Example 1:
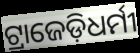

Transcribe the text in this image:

ଟ୍ରାଜେଡ଼ିଧର୍ମୀ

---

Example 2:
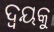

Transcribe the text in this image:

ଦ୍ୱୟକୁ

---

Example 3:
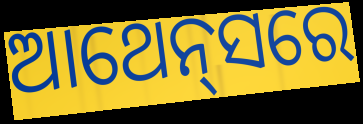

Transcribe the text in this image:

ଆଥେନ୍‍ସରେ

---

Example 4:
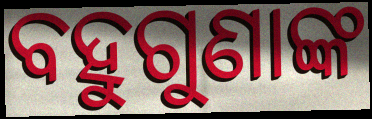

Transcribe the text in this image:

ବହୁଗୁଣାଙ୍କ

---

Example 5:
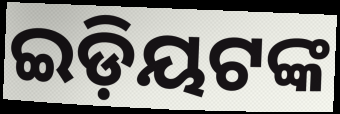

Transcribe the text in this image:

ଇଡ଼ିୟଟଙ୍କ